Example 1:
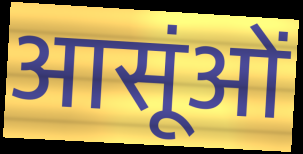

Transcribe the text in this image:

आसूंओं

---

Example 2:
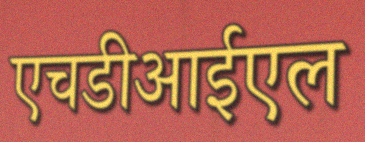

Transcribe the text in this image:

एचडीआईएल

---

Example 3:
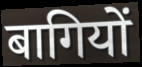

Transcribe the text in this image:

बागियों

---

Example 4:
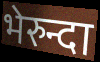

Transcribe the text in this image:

भेरुन्दा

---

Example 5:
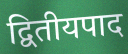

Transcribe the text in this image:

द्वितीयपाद